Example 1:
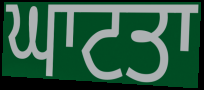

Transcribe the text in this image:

ਘਾਟਤਾ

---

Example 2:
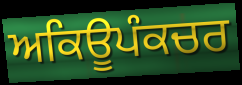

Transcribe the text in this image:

ਅਕਿਊਪੰਕਚਰ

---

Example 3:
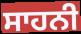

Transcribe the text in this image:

ਸਾਹਨੀ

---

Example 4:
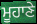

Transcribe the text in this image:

ਮੂਹਾਣੇ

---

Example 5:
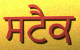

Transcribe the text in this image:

ਸਟੈਕ